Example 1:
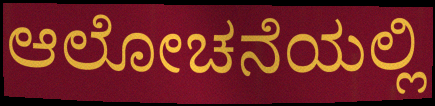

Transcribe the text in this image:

ಆಲೋಚನೆಯಲ್ಲಿ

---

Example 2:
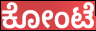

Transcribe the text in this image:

ಕೋಂಟೆ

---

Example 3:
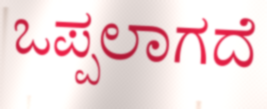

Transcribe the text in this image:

ಒಪ್ಪಲಾಗದೆ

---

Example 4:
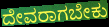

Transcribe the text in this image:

ದೇವರಾಗಬೇಕು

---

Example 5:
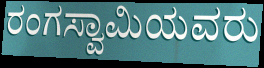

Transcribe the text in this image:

ರಂಗಸ್ವಾಮಿಯವರು